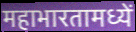
महाभारतामध्यें